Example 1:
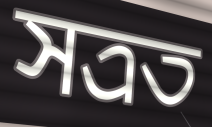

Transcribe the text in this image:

সত্ৰত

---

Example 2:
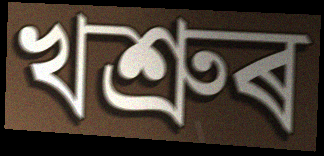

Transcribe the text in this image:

খশ্ৰুৰ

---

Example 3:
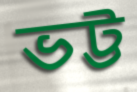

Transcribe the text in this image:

ভট্ট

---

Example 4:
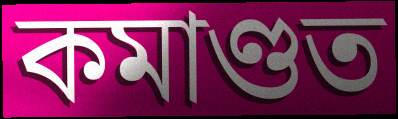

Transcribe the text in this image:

কমাণ্ডত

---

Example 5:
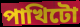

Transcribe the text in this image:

পাখিটো